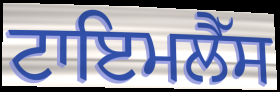
ਟਾਇਮਲੈੱਸ